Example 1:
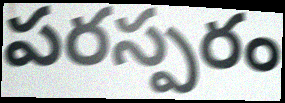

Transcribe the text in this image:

పరస్పరం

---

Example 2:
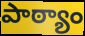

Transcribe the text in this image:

పాఠ్యాం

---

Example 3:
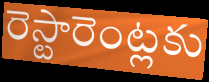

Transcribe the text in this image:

రెస్టారెంట్లకు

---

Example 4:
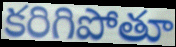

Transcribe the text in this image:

కరిగిపోతూ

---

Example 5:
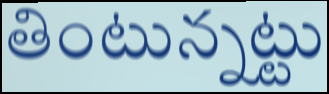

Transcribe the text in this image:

తింటున్నట్టు